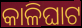
କାଳିଘାଟ